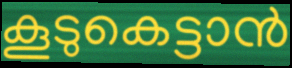
കൂടുകെട്ടാൻ